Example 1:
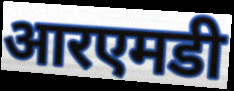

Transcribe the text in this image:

आरएमडी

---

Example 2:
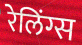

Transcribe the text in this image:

रेलिंग्स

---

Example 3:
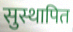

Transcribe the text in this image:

सुस्थापित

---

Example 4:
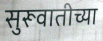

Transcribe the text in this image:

सुरूवातीच्या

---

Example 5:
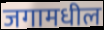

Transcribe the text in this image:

जगामधील